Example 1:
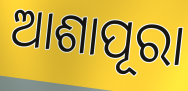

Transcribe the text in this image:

ଆଶାପୂରା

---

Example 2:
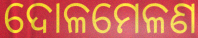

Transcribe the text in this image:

ଦୋଳମେଳଣ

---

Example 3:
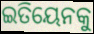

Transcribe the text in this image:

ଇତିୟେନକୁ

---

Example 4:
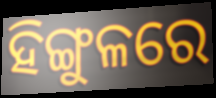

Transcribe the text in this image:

ହିଙ୍ଗୁଳରେ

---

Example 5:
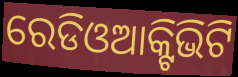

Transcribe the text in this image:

ରେଡିଓଆକ୍ଟିଭିଟି